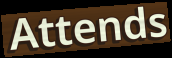
Attends